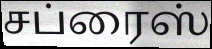
சப்ரைஸ்